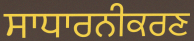
ਸਾਧਾਰਨੀਕਰਣ